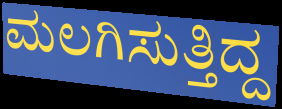
ಮಲಗಿಸುತ್ತಿದ್ದ